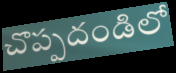
చొప్పదండిలో